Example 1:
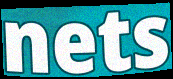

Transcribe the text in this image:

nets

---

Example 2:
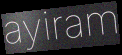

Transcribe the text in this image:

ayiram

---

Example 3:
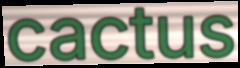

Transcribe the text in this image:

cactus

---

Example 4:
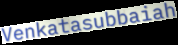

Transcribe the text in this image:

Venkatasubbaiah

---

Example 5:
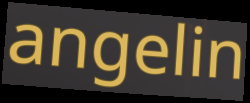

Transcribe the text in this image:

angelin